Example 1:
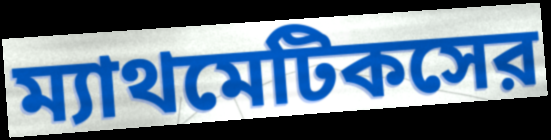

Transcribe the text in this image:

ম্যাথমেটিকসের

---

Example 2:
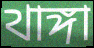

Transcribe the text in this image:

থাঙ্গা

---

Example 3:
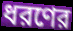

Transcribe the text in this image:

ধরণের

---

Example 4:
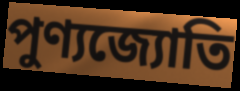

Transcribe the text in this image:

পুণ্যজ্যোতি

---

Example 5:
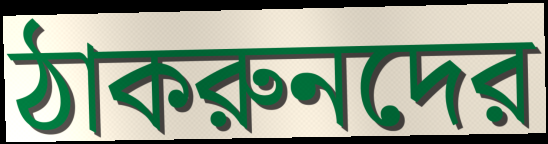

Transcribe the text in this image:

ঠাকরুনদের